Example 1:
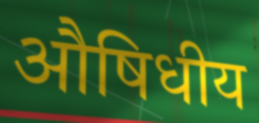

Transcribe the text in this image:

औषिधीय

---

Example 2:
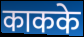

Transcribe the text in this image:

काकके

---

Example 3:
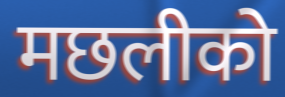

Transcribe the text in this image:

मछलीको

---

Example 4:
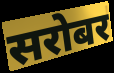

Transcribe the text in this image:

सरोबर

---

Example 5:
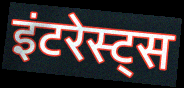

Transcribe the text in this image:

इंटरेस्ट्स